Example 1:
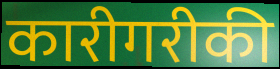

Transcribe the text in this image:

कारीगरीकी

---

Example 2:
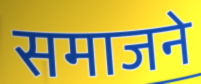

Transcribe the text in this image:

समाजने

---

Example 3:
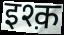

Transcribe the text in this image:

इश्क़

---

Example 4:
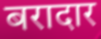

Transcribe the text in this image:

बरादार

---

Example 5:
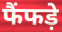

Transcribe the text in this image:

फैंफड़े